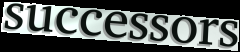
successors